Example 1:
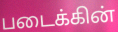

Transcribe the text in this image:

படைக்கின்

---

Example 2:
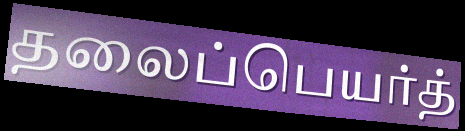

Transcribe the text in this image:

தலைப்பெயர்த்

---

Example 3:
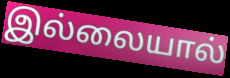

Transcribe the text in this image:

இல்லையால்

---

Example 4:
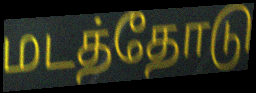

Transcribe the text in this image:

மடத்தோடு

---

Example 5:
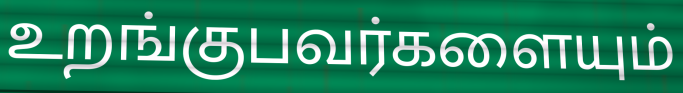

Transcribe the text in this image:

உறங்குபவர்களையும்